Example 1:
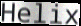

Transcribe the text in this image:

Helix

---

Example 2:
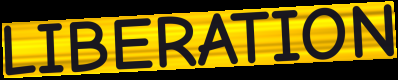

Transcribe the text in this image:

LIBERATION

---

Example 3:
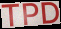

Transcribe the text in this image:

TPD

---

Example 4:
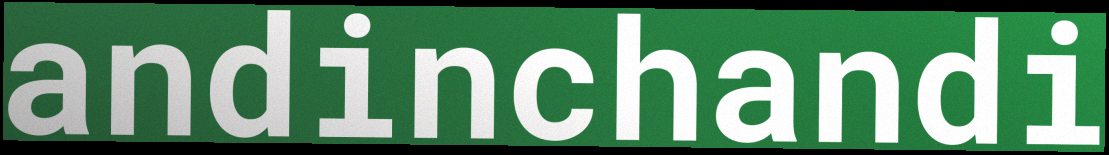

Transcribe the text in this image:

andinchandi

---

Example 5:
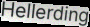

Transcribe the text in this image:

Hellerding